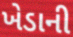
ખેડાની